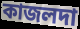
কাজলদা